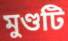
মুণ্ডটি